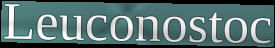
Leuconostoc